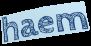
haem